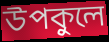
উপকুলে